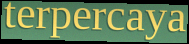
terpercaya